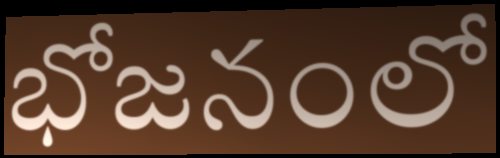
భోజనంలో